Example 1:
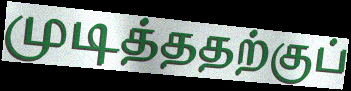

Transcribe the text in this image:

முடித்ததற்குப்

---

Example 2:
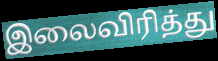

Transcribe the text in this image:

இலைவிரித்து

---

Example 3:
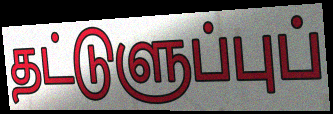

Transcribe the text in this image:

தட்டுளுப்புப்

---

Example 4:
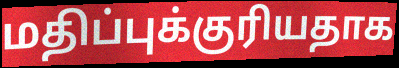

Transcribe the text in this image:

மதிப்புக்குரியதாக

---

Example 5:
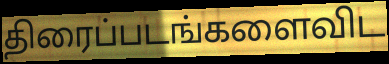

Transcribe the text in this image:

திரைப்படங்களைவிட